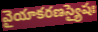
వైయాకరణస్యైషః